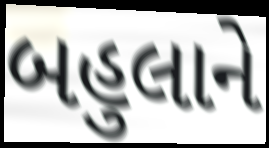
બહુલાને